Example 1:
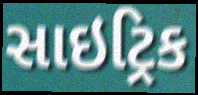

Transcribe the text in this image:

સાઇટ્રિક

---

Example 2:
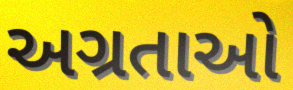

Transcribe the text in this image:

અગ્રતાઓ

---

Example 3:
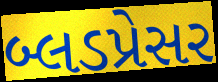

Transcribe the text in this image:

બ્લડપ્રેસર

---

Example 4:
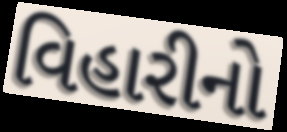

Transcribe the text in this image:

વિહારીનો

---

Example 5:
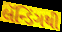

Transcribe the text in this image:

લૅન્ડિંગથી